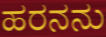
ಹರನನು